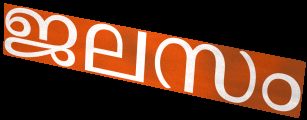
ജലസം